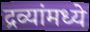
द्रव्यांमध्ये